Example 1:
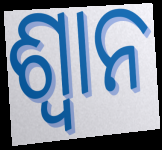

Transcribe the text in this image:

ଶ୍ୱାନ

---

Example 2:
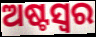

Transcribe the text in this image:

ଅଷ୍ଟସ୍ୱର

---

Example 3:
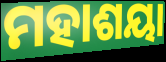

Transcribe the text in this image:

ମହାଶୟା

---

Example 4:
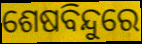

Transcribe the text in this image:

ଶେଷବିନ୍ଦୁରେ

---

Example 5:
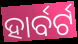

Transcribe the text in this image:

ହାର୍ବର୍ଟ